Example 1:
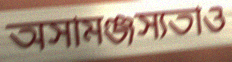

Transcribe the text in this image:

অসামঞ্জস্যতাও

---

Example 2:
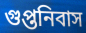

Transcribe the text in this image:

গুপ্তনিবাস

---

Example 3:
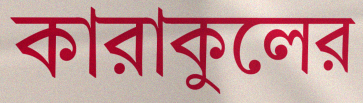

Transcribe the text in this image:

কারাকুলের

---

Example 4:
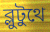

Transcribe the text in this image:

ব্লুটুথে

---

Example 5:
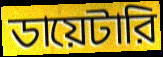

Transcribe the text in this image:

ডায়েটারি